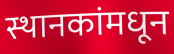
स्थानकांमधून